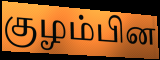
குழம்பின